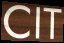
CIT